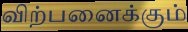
விற்பனைக்கும்